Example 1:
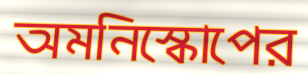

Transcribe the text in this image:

অমনিস্কোপের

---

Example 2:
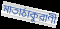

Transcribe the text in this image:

মাতাঠাকুরাণী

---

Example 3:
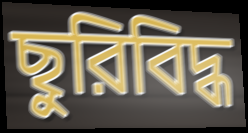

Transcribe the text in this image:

ছুরিবিদ্ধ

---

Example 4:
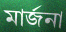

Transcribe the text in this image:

মার্জনা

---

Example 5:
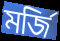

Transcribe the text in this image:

মর্জি